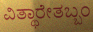
ವಿತ್ಥಾರೇತಬ್ಬಂ